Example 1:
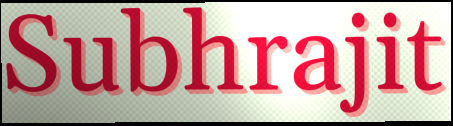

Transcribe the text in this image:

Subhrajit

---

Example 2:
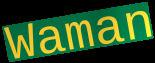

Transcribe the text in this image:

Waman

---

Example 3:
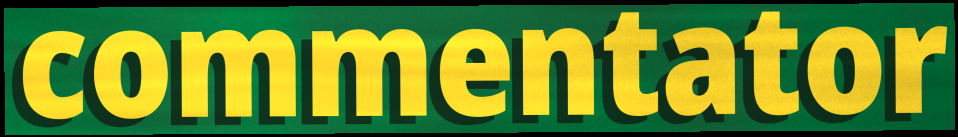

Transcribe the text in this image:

commentator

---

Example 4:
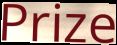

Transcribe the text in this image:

Prize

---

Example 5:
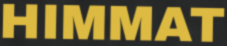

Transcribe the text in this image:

HIMMAT